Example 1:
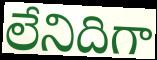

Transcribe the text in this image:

లేనిదిగా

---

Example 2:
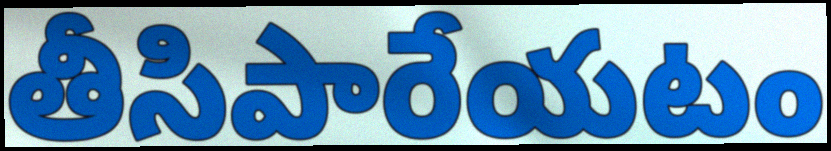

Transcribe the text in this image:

తీసిపారేయటం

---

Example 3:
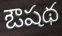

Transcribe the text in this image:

ఔషథ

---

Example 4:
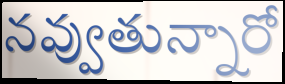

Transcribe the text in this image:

నవ్వుతున్నారో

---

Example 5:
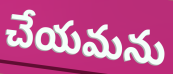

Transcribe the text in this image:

చేయమను